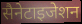
सैनेटाइजेशन